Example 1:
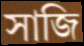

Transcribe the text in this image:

সাজি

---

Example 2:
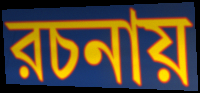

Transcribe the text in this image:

রচনায়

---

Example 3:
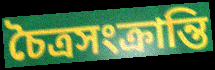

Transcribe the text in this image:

চৈত্রসংক্রান্তি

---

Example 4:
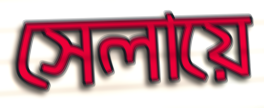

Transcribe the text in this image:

সেলায়ে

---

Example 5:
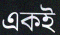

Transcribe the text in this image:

একই